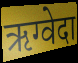
ऋग्वेदा